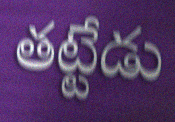
తట్టేడు